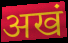
अखं